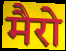
मैरो